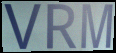
VRM